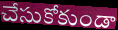
చేసుకోకుండా